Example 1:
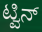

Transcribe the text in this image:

ಟ್ವಿನ್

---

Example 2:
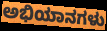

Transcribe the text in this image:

ಅಭಿಯಾನಗಳು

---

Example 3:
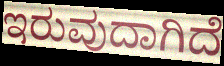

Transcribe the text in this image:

ಇರುವುದಾಗಿದೆ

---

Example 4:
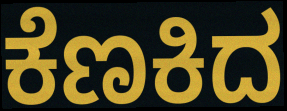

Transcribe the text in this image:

ಕೆಣಕಿದ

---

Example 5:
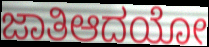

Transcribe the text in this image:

ಜಾತಿಆದಯೋ